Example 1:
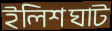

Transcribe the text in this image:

ইলিশঘাট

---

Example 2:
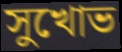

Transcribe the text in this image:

সুখোভ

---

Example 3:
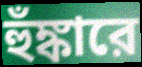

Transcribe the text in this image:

হুঁঙ্কারে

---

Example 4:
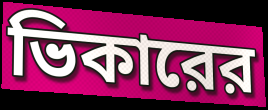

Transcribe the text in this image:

ভিকারের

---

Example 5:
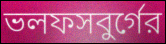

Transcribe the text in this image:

ভলফসবুর্গের